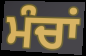
ਮੰਚਾਂ